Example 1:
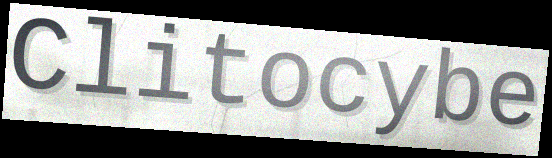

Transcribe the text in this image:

Clitocybe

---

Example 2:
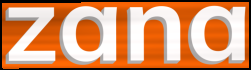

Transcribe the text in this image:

zana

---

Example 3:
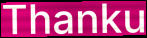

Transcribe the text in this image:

Thanku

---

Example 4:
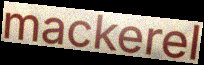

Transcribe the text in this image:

mackerel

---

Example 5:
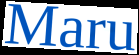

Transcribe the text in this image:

Maru